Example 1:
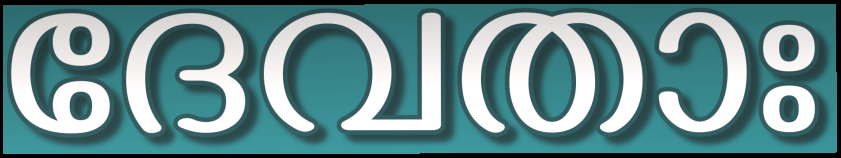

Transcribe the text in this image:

ദേവതാഃ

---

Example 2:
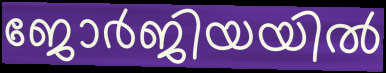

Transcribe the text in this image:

ജോർജിയയിൽ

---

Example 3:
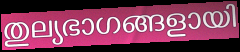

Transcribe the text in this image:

തുല്യഭാഗങ്ങളായി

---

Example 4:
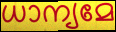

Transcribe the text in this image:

ധാന്യമേ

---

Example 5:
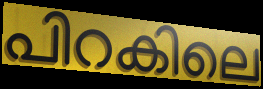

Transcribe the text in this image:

പിറകിലെ